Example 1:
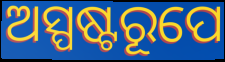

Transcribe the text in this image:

ଅସ୍ପଷ୍ଟରୂପେ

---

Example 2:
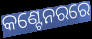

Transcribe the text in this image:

କଣ୍ଟେନରରେ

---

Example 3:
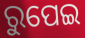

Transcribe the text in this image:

ରୁପେଇ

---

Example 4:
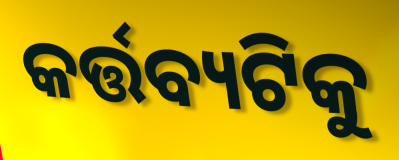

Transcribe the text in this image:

କର୍ତ୍ତବ୍ୟଟିକୁ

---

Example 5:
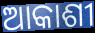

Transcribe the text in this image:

ଆକାଶୀ